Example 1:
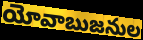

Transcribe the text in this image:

యోవాబుజనుల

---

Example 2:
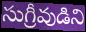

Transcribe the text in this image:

సుగ్రీవుడిని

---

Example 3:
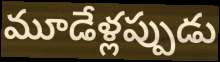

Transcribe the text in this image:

మూడేళ్లప్పుడు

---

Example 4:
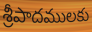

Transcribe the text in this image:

శ్రీపాదములకు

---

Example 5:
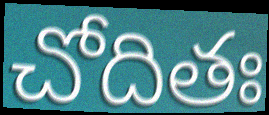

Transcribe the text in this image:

చోదితః